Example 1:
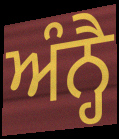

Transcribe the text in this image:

ਅੰਨ੍ਹੈ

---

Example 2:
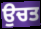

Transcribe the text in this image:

ਉਚਤ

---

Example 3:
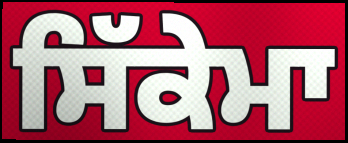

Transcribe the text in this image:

ਸਿੱਕੇਮਾ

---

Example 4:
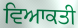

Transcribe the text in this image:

ਵਿਆਕਤੀ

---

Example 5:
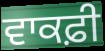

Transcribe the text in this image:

ਵਾਕਫ਼ੀ